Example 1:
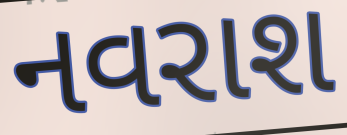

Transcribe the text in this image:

નવરાશ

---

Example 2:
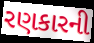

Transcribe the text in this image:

રણકારની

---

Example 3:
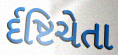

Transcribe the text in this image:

ર્દષ્ટિચેતા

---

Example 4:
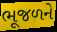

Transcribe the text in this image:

ભૂજળને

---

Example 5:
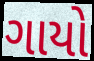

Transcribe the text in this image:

ગાયો